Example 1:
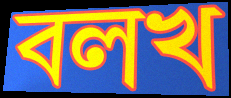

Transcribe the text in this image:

বলখ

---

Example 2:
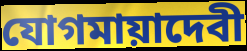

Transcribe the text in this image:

যোগমায়াদেবী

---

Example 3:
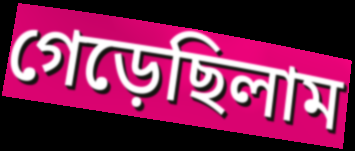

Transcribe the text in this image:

গেড়েছিলাম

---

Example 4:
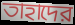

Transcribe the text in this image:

তাহাদের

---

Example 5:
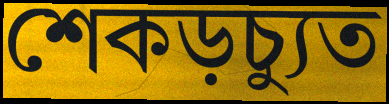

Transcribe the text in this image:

শেকড়চ্যুত